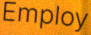
Employ